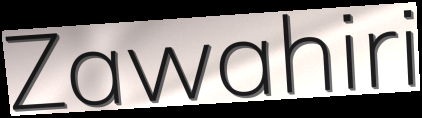
Zawahiri